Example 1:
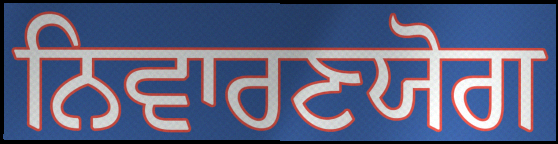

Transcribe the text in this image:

ਨਿਵਾਰਣਯੋਗ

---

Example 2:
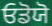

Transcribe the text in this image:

ਓਡੋਯੋ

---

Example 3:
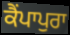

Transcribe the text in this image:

ਕੈਂਪਾਪੁਰਾ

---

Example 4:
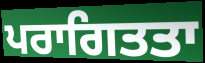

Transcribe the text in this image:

ਪਰਾਗਿਤਤਾ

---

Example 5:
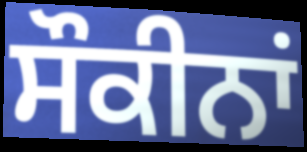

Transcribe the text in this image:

ਸੌਕੀਨਾਂ